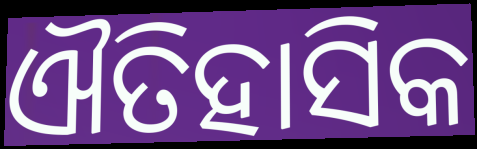
ଐତିହାସିକ